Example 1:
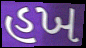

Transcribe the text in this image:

હખ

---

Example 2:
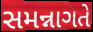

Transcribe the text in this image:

સમન્નાગતે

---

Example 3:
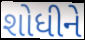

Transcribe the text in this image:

શોધીને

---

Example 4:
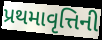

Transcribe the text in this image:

પ્રથમાવૃત્તિની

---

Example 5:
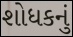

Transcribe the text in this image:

શોધકનું